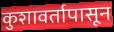
कुशावर्तापासून